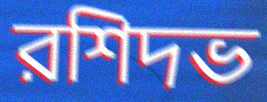
রশিদভ